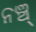
ନଞ୍ଚ୍